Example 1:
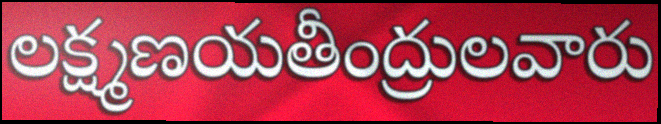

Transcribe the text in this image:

లక్ష్మణయతీంద్రులవారు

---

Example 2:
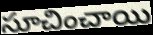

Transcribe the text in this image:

సూచించాయి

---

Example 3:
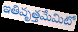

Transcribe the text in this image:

ఇతివృత్తమేమిటో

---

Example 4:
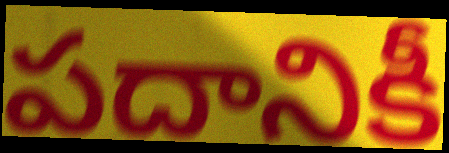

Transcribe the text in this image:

పదానికీ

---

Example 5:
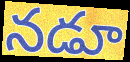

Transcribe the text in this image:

నడూ